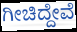
ಗೀಚಿದ್ದೇವೆ